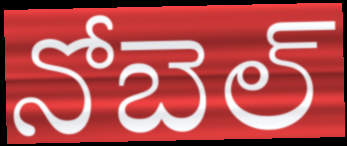
నోబెల్